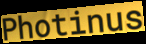
Photinus